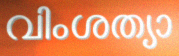
വിംശത്യാ